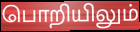
பொறியிலும்